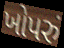
ખોપરું